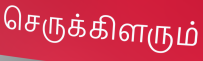
செருக்கிளரும்